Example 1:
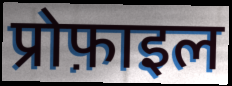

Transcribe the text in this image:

प्रोफ़ाइल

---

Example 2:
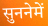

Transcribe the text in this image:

सुननेमें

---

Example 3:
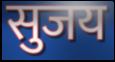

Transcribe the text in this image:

सुजय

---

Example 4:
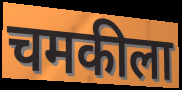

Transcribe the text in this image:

चमकीला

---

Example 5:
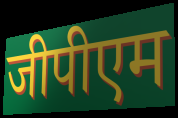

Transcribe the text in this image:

जीपीएम